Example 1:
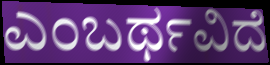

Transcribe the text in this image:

ಎಂಬರ್ಥವಿದೆ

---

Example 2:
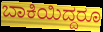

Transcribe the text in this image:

ಬಾಕಿಯಿದ್ದರೂ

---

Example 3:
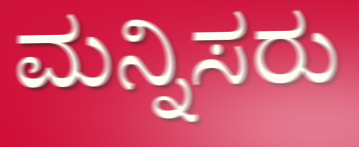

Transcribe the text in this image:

ಮನ್ನಿಸರು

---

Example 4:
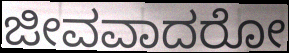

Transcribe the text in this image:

ಜೀವವಾದರೋ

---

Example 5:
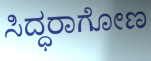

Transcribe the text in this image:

ಸಿದ್ಧರಾಗೋಣ